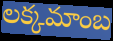
లక్కమాంబ